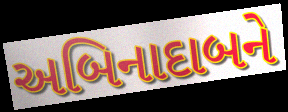
અબિનાદાબને